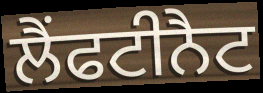
ਲੈਂਫਟੀਨੈਟ